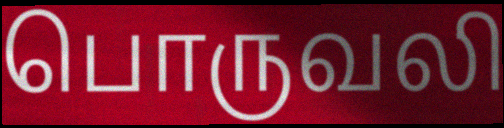
பொருவலி